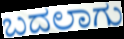
ಬದಲಾಗು